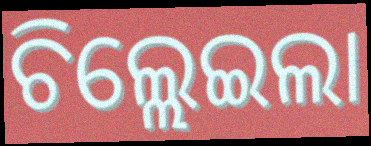
ଚିଲ୍ଲେଇଲା